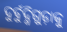
ଦୁର୍ବୁଦ୍ଧିଗୁଡ଼ାକୁ